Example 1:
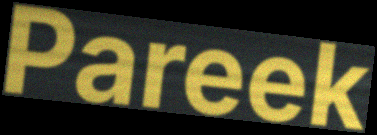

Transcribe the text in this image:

Pareek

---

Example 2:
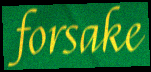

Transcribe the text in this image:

forsake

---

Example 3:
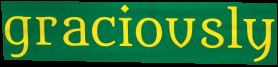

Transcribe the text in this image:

graciously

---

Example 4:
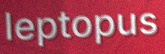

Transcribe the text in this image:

leptopus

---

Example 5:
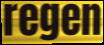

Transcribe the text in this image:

regen